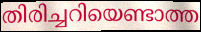
തിരിച്ചറിയെണ്ടാത്ത